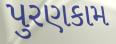
પુરણકામ